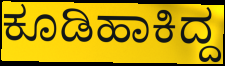
ಕೂಡಿಹಾಕಿದ್ದ